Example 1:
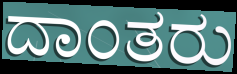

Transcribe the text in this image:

ದಾಂತರು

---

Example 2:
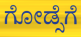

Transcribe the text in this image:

ಗೋಡ್ಸೆಗೆ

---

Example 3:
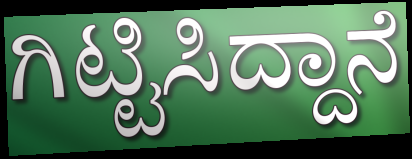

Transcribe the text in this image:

ಗಿಟ್ಟಿಸಿದ್ದಾನೆ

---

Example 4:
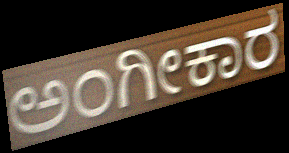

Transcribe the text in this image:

ಅಂಗೀಕಾರ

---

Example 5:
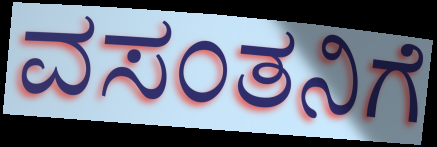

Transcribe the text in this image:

ವಸಂತನಿಗೆ